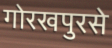
गोरखपुरसे